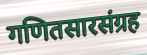
गणितसारसंग्रह